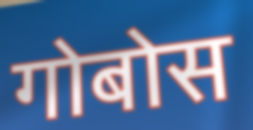
गोबोस